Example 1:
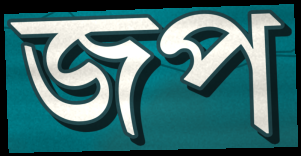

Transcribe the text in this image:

জপ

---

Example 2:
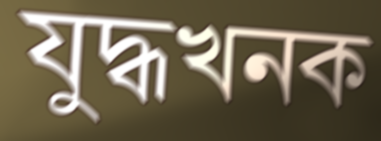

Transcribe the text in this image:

যুদ্ধখনক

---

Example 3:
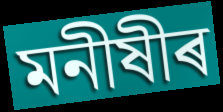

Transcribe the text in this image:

মনীষীৰ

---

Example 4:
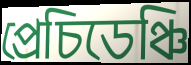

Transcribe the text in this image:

প্ৰেচিডেঞ্চি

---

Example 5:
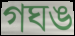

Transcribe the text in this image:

গঘঙ